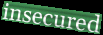
insecured